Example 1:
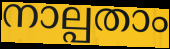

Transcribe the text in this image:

നാല്പതാം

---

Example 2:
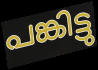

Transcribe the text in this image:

പങ്കിട്ടു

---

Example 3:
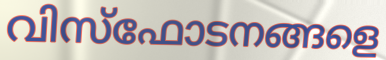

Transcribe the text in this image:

വിസ്ഫോടനങ്ങളെ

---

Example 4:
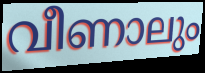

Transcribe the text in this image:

വീണാലും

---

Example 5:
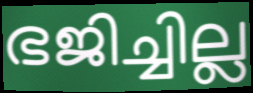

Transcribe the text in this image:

ഭജിച്ചില്ല